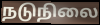
நடுநிலை